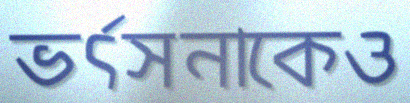
ভর্ৎসনাকেও